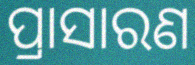
ପ୍ରାସାରଣ